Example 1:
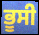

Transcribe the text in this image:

ਭੂਸੀ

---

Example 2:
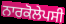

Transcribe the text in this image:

ਨਾਰਕੋਲੇਪਸੀ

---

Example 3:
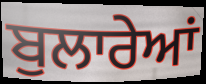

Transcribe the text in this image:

ਬੁਲਾਰੇਆਂ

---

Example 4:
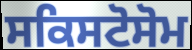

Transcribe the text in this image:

ਸਕਿਸਟੋਸੋਮ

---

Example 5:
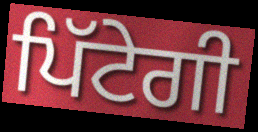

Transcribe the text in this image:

ਪਿੱਟੇਗੀ